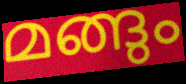
മങ്ങും